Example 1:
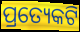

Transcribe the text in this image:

ପ୍ରତ୍ୟେକଟି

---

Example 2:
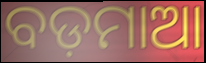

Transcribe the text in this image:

ବଡ଼ମାଆ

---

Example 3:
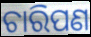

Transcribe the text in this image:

ଚାରିପଣ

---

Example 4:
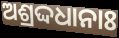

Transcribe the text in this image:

ଅଶ୍ରଦ୍ଦଧାନାଃ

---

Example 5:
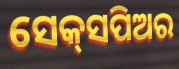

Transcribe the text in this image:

ସେକ୍‌ସପିଅର